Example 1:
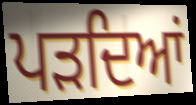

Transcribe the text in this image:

ਪੜਦਿਆਂ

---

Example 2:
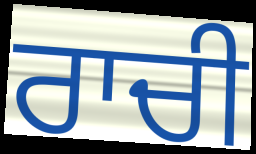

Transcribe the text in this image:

ਰਾਚੀ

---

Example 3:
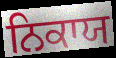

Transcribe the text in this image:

ਨਿਕਾਯ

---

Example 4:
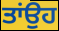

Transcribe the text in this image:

ਤਾਂਉਹ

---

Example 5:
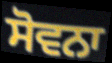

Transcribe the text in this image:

ਸੋਵਨਾ